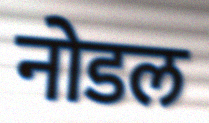
नोडल